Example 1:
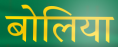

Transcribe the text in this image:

बोलिया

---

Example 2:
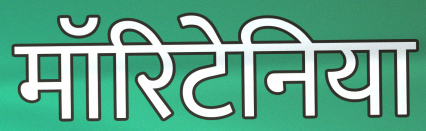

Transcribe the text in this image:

मॉरिटेनिया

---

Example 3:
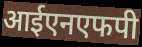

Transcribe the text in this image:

आईएनएफपी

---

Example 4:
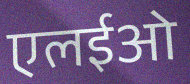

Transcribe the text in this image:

एलईओ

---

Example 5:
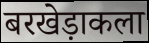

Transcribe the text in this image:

बरखेड़ाकला